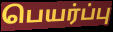
பெயர்ப்பு